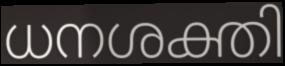
ധനശക്തി